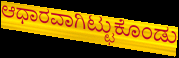
ಆಧಾರವಾಗಿಟ್ಟುಕೊಂಡು